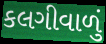
કલગીવાળું